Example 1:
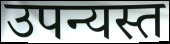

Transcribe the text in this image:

उपन्यस्त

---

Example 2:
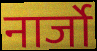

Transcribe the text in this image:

नार्जो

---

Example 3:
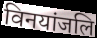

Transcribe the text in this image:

विनयांजलि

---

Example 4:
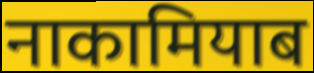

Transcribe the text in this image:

नाकामियाब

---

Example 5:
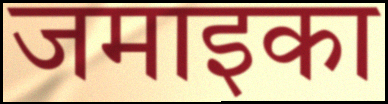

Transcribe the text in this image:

जमाइका